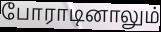
போராடினாலும்